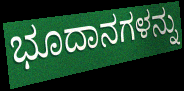
ಭೂದಾನಗಳನ್ನು